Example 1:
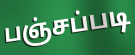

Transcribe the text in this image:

பஞ்சப்படி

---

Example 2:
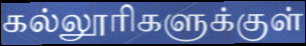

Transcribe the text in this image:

கல்லூரிகளுக்குள்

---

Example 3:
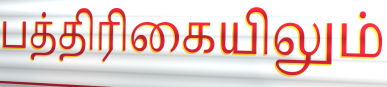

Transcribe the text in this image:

பத்திரிகையிலும்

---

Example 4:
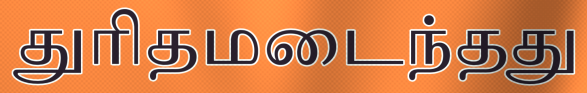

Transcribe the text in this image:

துரிதமடைந்தது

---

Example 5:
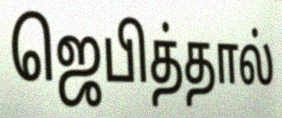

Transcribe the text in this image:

ஜெபித்தால்